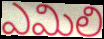
ఎమిలి